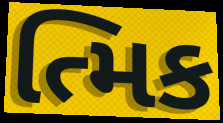
ત્મિક